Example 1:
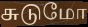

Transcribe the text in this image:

சுடுமோ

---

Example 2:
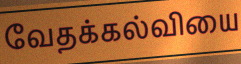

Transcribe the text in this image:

வேதக்கல்வியை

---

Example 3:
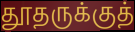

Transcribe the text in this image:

தூதருக்குத்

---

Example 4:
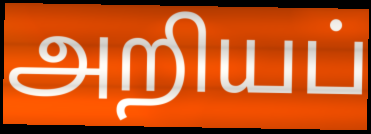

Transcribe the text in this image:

அறியப்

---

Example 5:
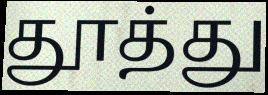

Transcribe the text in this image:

தூத்து